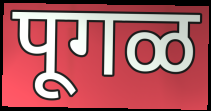
पूगळ